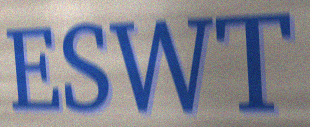
ESWT